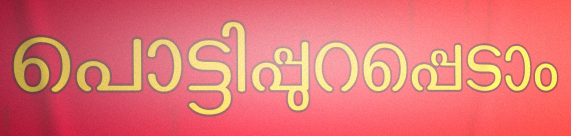
പൊട്ടിപ്പുറപ്പെടാം